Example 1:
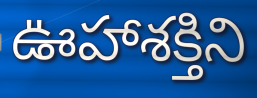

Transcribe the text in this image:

ఊహాశక్తిని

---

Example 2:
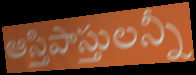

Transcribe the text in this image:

ఆస్తిపాస్తులన్నీ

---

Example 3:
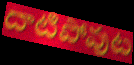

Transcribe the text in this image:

దాటిపోవుట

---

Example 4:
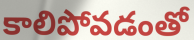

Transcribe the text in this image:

కాలిపోవడంతో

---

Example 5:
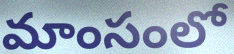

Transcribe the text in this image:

మాంసంలో